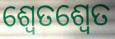
ଶ୍ବେତଶ୍ଵେତ